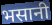
भसानी